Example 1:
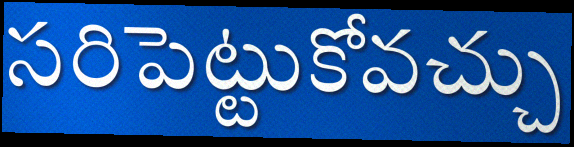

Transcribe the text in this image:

సరిపెట్టుకోవచ్చు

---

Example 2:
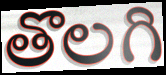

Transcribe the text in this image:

తొలగి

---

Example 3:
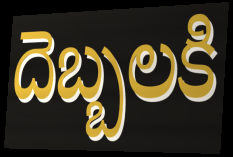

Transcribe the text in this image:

దెబ్బలకి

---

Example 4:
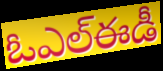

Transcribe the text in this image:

ఓఎల్ఈడీ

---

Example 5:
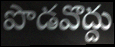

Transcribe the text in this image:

పొడవొద్దు